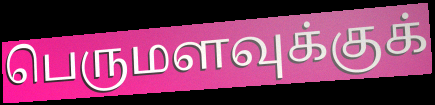
பெருமளவுக்குக்